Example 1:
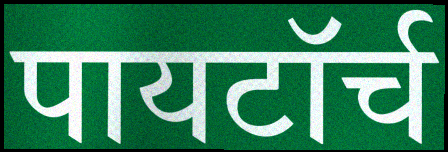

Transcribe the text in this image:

पायटॉर्च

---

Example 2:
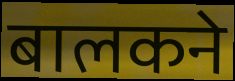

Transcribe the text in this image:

बालकने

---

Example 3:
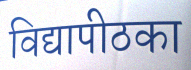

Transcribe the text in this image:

विद्यापीठका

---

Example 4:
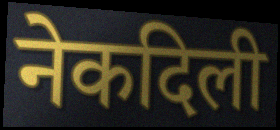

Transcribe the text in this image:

नेकदिली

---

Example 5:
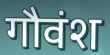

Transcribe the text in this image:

गौवंश